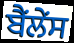
ਬੈਂਲੇਂਸ